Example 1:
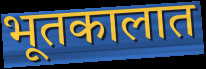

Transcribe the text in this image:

भूतकालात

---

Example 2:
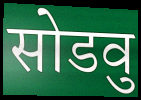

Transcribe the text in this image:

सोडवु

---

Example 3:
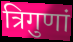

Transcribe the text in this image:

त्रिगुणां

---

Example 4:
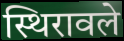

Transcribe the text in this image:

स्थिरावले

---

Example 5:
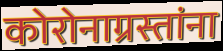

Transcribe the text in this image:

कोरोनाग्रस्तांना